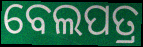
ବେଲପତ୍ର